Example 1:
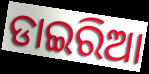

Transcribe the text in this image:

ଡାଇରିଆ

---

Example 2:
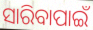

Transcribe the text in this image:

ସାରିବାପାଇଁ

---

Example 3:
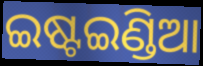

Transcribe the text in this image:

ଇଷ୍ଟଇଣ୍ଡିଆ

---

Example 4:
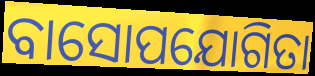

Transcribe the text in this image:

ବାସୋପଯୋଗିତା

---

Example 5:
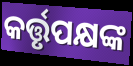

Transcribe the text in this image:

କର୍ତ୍ତୃପକ୍ଷଙ୍କ